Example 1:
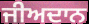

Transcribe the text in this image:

ਜੀਅਦਾਨ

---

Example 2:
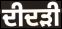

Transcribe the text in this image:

ਦੀਦੜੀ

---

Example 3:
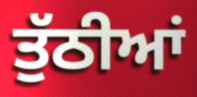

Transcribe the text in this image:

ਤੁੱਠੀਆਂ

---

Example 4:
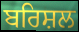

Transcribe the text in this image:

ਬਰਿਸ਼ਲ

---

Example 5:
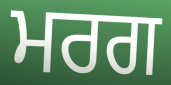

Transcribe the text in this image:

ਮਰਗ